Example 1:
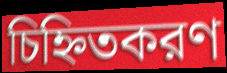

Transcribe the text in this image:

চিহ্নিতকরণ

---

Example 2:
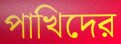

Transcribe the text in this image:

পাখিদের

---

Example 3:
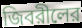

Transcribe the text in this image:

জিবরীলের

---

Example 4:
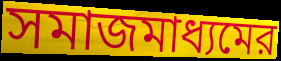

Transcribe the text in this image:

সমাজমাধ্যমের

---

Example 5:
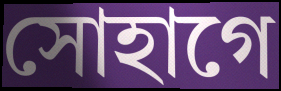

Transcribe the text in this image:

সোহাগে